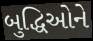
બુદ્ધિઓને